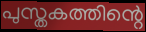
പുസ്തകത്തിന്റെ